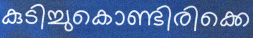
കുടിച്ചുകൊണ്ടിരിക്കെ